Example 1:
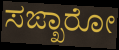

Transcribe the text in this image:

ಸಙ್ಖಾರೋ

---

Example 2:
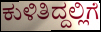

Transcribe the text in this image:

ಕುಳಿತಿದ್ದಲ್ಲಿಗೆ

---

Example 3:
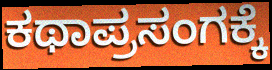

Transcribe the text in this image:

ಕಥಾಪ್ರಸಂಗಕ್ಕೆ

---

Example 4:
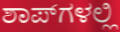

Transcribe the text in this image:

ಶಾಪ್‌ಗಳಲ್ಲಿ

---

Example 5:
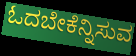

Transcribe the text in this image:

ಓದಬೇಕೆನ್ನಿಸುವ